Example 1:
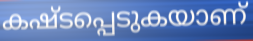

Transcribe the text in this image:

കഷ്ടപ്പെടുകയാണ്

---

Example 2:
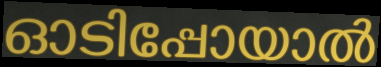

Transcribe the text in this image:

ഓടിപ്പോയാൽ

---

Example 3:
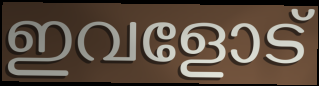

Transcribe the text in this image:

ഇവളോട്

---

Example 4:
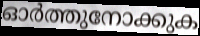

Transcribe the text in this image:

ഓർത്തുനോക്കുക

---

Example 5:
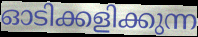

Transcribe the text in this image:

ഓടിക്കളിക്കുന്ന